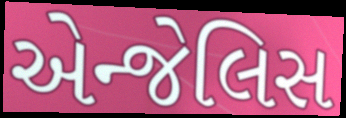
એન્જેલિસ